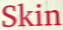
Skin